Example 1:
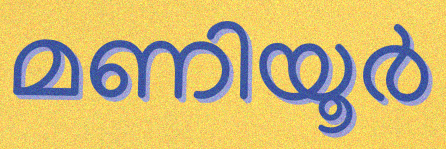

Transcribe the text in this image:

മണിയൂർ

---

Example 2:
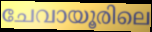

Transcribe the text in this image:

ചേവായൂരിലെ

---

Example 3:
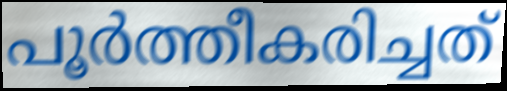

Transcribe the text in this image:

പൂർത്തീകരിച്ചത്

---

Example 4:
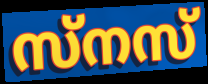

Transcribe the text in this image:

സ്നസ്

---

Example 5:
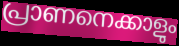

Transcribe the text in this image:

പ്രാണനെക്കാളും